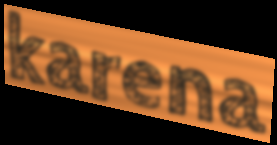
karena